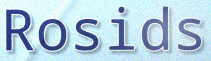
Rosids